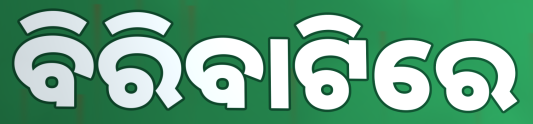
ବିରିବାଟିରେ